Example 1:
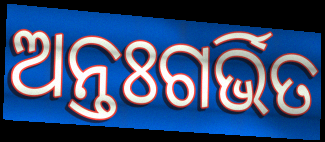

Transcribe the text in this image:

ଅନ୍ତଃଗର୍ଭିତ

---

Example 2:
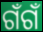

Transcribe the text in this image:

ଗଁଗଁ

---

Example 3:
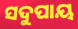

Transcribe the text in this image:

ସଦୁପାୟ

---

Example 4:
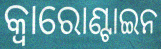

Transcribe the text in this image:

କ୍ୱାରୋଣ୍ଟାଇନ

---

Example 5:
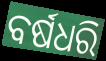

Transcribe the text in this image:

ବର୍ଷଧରି